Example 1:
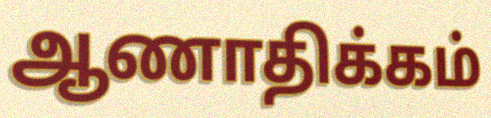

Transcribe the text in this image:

ஆணாதிக்கம்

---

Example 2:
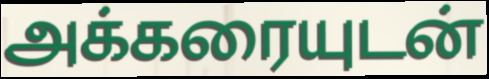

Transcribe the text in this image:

அக்கரையுடன்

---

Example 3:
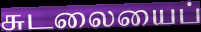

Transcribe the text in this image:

சுடலையைப்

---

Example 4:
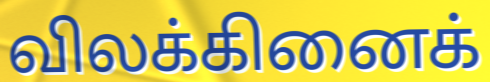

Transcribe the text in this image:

விலக்கினைக்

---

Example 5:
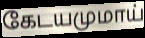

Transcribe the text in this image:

கேடயமுமாய்